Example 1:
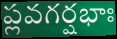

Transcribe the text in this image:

ప్లవగర్షభాః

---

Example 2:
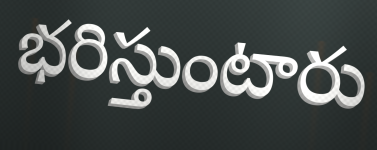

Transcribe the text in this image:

భరిస్తుంటారు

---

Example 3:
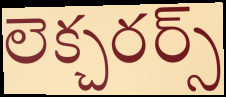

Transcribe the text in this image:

లెక్చరర్స్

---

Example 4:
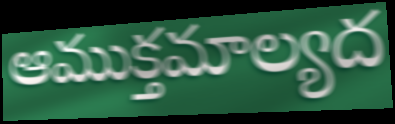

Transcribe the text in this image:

ఆముక్తమాల్యద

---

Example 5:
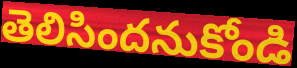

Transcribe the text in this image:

తెలిసిందనుకోండి